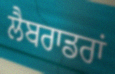
ਲੈਬਰਾਡਰਾਂ